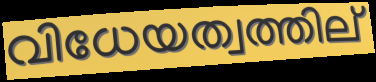
വിധേയത്വത്തില്